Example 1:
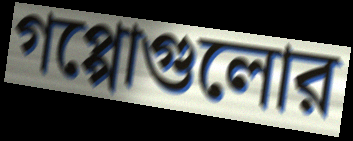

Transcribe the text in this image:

গপ্পোগুলোর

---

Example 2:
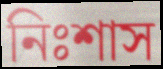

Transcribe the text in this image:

নিঃশাস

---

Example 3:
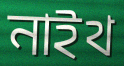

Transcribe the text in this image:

নাইথ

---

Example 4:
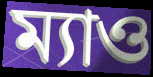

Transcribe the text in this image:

ম্যাও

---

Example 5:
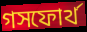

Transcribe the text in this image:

গসফোর্থ